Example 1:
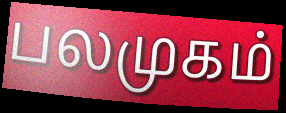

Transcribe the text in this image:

பலமுகம்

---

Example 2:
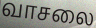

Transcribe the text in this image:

வாசலை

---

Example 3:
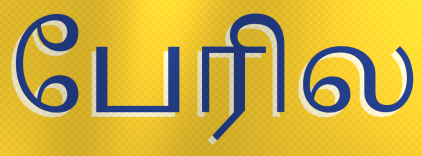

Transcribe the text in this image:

பேரில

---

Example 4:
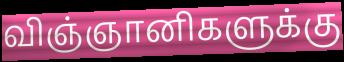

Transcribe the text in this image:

விஞ்ஞானிகளுக்கு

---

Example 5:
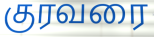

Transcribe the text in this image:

குரவரை